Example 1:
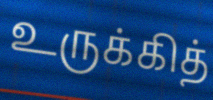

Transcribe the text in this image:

உருக்கித்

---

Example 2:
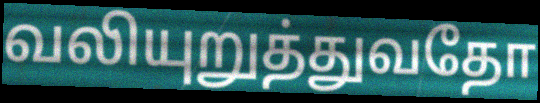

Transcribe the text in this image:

வலியுறுத்துவதோ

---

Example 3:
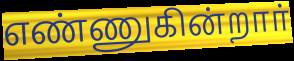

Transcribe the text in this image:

எண்ணுகின்றார்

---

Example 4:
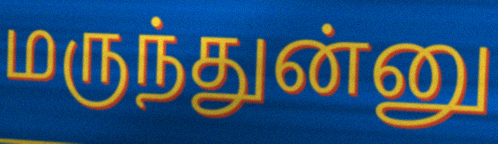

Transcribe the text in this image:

மருந்துன்னு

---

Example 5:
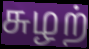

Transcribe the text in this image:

சுழற்